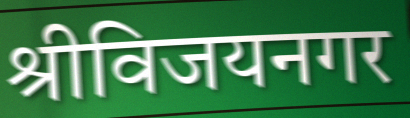
श्रीविजयनगर